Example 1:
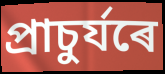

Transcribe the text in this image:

প্ৰাচুৰ্যৰে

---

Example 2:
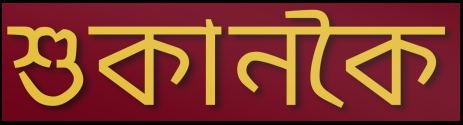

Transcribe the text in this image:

শুকানকৈ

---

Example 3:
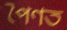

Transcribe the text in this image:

পৈণত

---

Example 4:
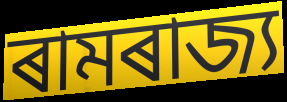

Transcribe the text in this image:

ৰামৰাজ্য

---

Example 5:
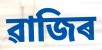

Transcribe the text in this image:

ৱাজিৰ